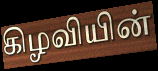
கிழவியின்